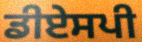
ਡੀਏਸਪੀ